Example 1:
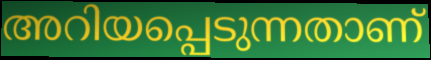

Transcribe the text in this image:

അറിയപ്പെടുന്നതാണ്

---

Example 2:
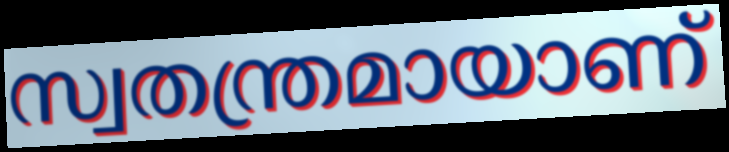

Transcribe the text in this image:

സ്വതന്ത്രമായാണ്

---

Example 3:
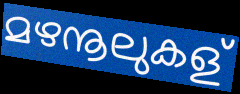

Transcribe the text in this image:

മഴനൂലുകള്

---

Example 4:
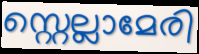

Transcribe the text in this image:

സ്റ്റെല്ലാമേരി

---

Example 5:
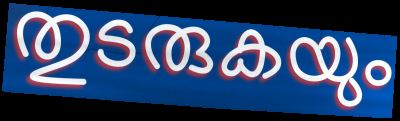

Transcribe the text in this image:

തുടരുകയും